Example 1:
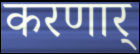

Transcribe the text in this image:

करणार्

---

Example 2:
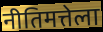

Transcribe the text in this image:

नीतिमत्तेला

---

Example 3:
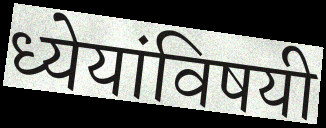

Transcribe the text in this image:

ध्येयांविषयी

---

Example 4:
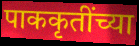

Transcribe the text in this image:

पाककृतींच्या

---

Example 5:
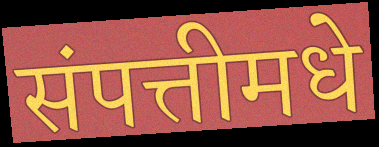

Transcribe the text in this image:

संपत्तीमधे